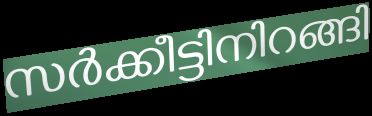
സർക്കീട്ടിനിറങ്ങി